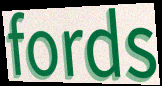
fords